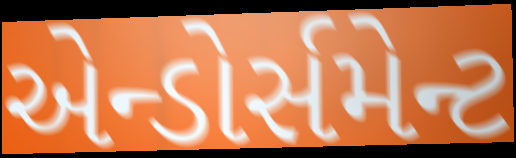
એન્ડોર્સમેન્ટ